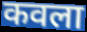
कवला